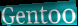
Gentoo